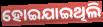
ହୋଇଯାଇଥିଲି